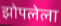
झोपलेला